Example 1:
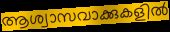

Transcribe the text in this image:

ആശ്വാസവാക്കുകളിൽ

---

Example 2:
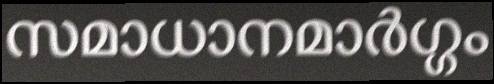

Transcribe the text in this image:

സമാധാനമാർഗ്ഗം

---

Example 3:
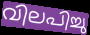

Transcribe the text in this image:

വിലപിച്ചു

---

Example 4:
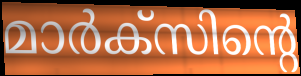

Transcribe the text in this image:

മാർക്സിന്റെ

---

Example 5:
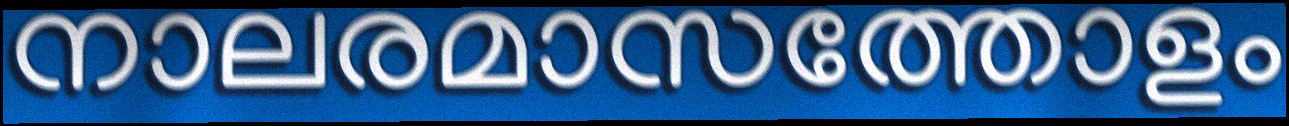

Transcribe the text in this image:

നാലരമാസത്തോളം